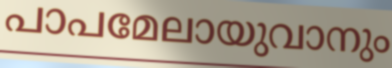
പാപമേലായുവാനും